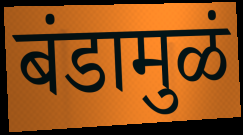
बंडामुळं